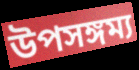
উপসঙ্গম্য